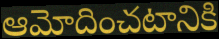
ఆమోదించటానికి